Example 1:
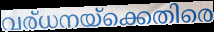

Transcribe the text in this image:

വര്ധനയ്ക്കെതിരെ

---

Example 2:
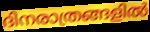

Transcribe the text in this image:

ദിനരാത്രങ്ങളിൽ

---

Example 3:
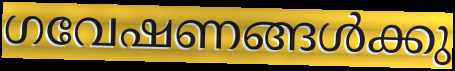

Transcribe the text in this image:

ഗവേഷണങ്ങൾക്കു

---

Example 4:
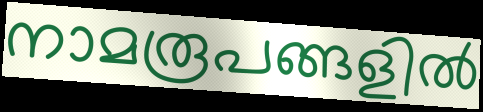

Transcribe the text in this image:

നാമരൂപങ്ങളിൽ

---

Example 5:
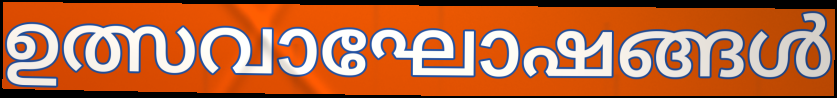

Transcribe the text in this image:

ഉത്സവാഘോഷങ്ങൾ